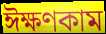
ঈক্ষণকাম